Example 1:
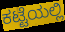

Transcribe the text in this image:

ಕಟ್ಟೆಯಲ್ಲಿ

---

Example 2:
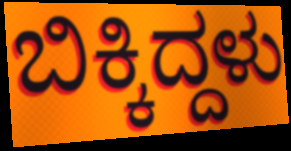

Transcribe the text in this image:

ಬಿಕ್ಕಿದ್ದಳು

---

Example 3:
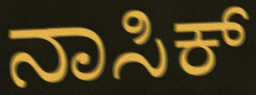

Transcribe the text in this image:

ನಾಸಿಕ್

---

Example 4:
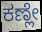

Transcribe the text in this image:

ಕಣ್ಲೇ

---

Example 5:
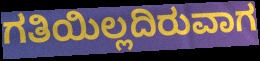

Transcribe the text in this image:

ಗತಿಯಿಲ್ಲದಿರುವಾಗ